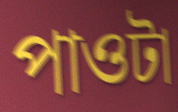
পাওটা